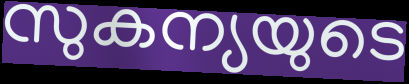
സുകന്യയുടെ